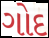
ગોદ